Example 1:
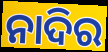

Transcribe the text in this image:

ନାଦିର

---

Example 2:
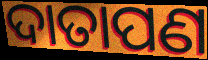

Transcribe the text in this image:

ଦାତାପଣ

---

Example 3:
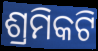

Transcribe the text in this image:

ଶ୍ରମିକଟି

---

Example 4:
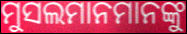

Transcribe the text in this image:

ମୁସଲମାନମାନଙ୍କୁ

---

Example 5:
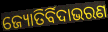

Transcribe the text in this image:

ଜ୍ୟୋତିର୍ବିଦାଭରଣ